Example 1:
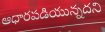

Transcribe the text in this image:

ఆధారపడియున్నదని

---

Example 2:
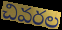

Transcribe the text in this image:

చివరల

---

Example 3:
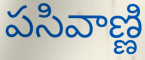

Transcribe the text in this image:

పసివాణ్ణి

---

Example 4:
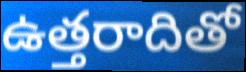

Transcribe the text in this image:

ఉత్తరాదితో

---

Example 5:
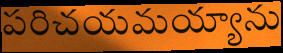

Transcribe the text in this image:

పరిచయమయ్యాను